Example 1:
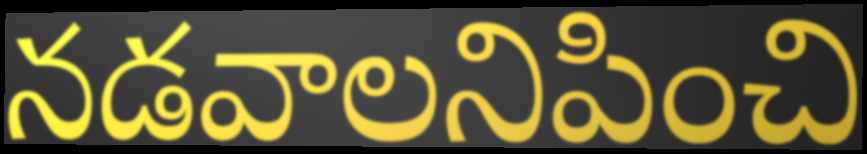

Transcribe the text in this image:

నడవాలనిపించి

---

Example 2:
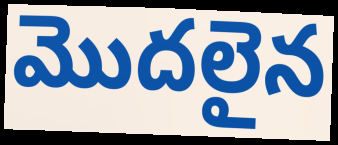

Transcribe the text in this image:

మొదలైన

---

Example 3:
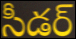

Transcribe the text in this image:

సీడర్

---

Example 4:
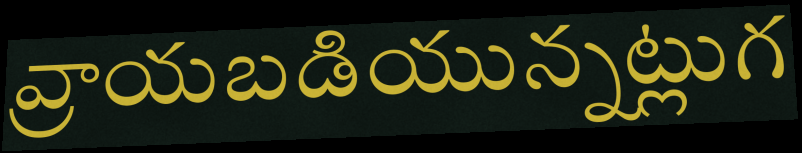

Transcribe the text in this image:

వ్రాయబడియున్నట్లుగ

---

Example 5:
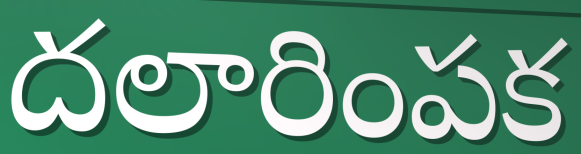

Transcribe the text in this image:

దలారింపక